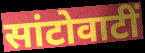
सांटोवाटीं